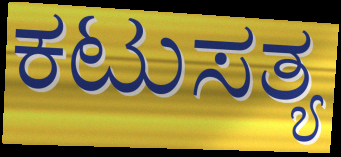
ಕಟುಸತ್ಯ